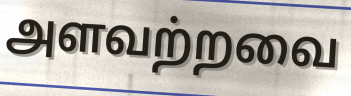
அளவற்றவை